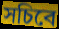
সচিবে